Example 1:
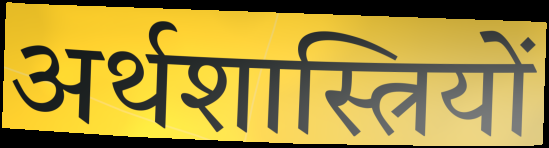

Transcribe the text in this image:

अर्थशास्त्रियों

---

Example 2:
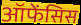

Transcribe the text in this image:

ऑफेंसिस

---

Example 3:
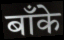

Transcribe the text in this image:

बाँके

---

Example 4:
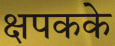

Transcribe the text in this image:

क्षपकके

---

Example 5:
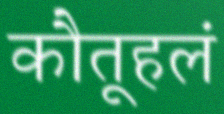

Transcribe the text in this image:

कौतूहलं